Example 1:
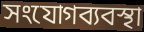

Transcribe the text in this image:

সংযোগব্যবস্থা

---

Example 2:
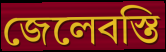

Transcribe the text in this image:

জেলেবস্তি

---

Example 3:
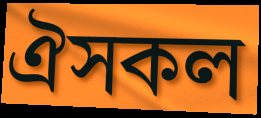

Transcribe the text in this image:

ঐসকল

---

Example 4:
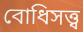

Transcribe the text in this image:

বোধিসত্ত্ব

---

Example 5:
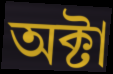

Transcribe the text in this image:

অক্টা